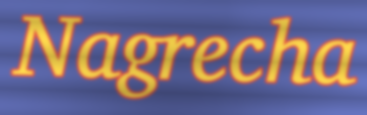
Nagrecha